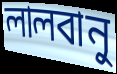
লালবানু